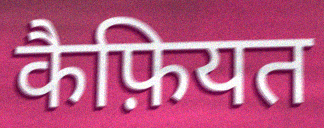
कैफ़ियत